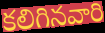
కలిగినవారి